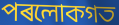
পৰলোকগত